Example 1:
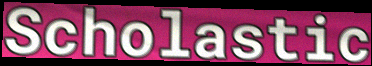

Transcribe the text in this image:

Scholastic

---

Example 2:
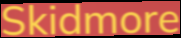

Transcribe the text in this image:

Skidmore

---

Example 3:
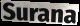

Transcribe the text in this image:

Surana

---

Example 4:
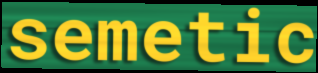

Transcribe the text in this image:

semetic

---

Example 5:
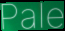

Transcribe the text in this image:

Pale